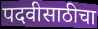
पदवीसाठीचा